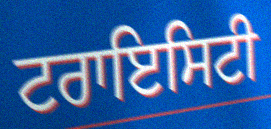
ਟਰਾਇਸਿਟੀ